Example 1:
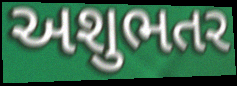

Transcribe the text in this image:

અશુભતર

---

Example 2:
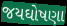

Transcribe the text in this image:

જયઘોષણા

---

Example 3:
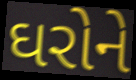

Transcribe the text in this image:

ઘરોને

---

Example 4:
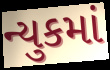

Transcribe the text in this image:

ન્યુકમાં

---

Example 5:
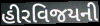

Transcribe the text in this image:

હીરવિજયની